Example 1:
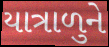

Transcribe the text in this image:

યાત્રાળુને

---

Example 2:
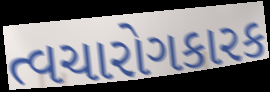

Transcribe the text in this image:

ત્વચારોગકારક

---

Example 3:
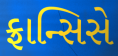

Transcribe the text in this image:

ફ્રાન્સિસે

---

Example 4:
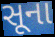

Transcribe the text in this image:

સૂના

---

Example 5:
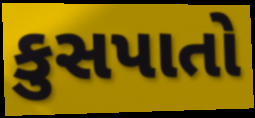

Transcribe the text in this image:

કુસપાતો